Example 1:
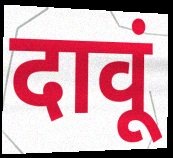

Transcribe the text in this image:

दावूं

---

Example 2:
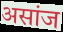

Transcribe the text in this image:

असांज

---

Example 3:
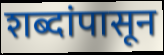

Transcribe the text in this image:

शब्दांपासून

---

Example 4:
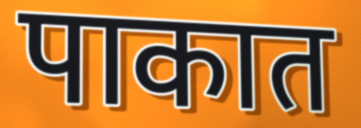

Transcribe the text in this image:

पाकात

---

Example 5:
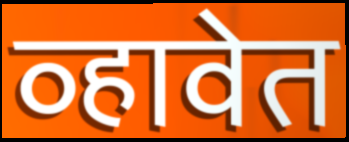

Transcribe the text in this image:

व्हावेत